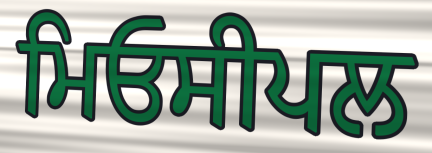
ਮਿਓਸੀਪਲ